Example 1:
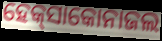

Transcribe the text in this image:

ହେକ୍‌ସାକୋନାଜଲ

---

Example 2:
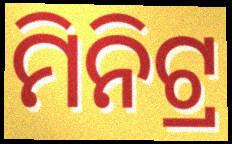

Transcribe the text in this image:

ମିନିଟ୍ର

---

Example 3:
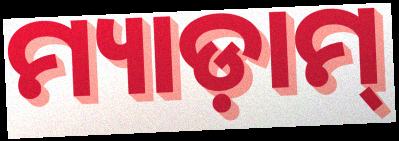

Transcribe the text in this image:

ମ୍ୟାଡ଼ାମ୍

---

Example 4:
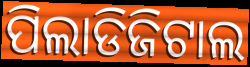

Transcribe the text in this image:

ପିଲାଡିଜିଟାଲ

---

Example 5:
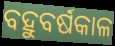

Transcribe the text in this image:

ବହୁବର୍ଷକାଳ